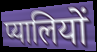
प्यालियों